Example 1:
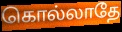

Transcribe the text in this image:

கொல்லாதே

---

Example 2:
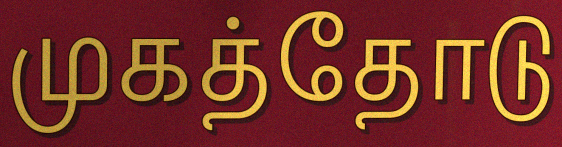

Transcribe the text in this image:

முகத்தோடு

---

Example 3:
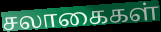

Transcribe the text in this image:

சலாகைகள்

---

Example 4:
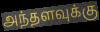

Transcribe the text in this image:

அந்தளவுக்கு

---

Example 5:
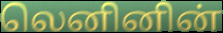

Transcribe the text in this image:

லெனினின்